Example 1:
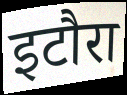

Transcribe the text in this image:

इटौरा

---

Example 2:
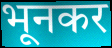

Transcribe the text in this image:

भूनकर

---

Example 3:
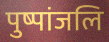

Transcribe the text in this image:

पुष्पांजलि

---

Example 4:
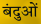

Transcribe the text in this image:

बंदुओं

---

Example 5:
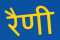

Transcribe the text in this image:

रैणी